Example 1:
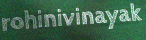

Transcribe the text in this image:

rohinivinayak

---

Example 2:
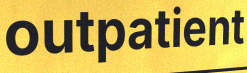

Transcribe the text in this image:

outpatient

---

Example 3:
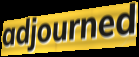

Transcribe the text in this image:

adjourned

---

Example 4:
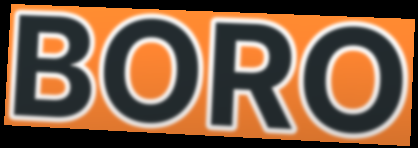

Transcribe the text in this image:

BORO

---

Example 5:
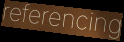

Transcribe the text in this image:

referencing